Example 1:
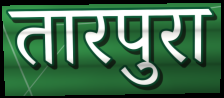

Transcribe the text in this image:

तारपुरा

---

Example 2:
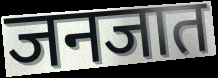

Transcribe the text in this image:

जनजात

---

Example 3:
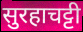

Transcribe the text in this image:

सुरहाचट्टी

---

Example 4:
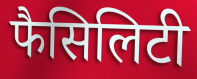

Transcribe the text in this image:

फैसिलिटी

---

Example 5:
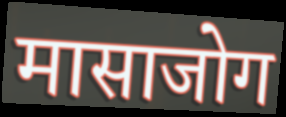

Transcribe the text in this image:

मासाजोग